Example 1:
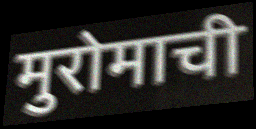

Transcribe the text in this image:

मुरोमाची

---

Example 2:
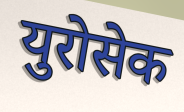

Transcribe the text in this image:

युरोसेक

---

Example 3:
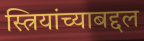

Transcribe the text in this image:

स्त्रियांच्याबद्दल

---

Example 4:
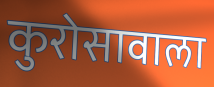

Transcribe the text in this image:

कुरोसावाला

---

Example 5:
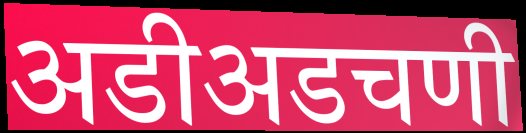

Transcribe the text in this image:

अडीअडचणी